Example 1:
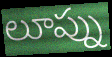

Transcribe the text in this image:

లూప్ను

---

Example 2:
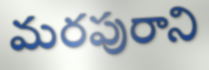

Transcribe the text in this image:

మరపురాని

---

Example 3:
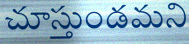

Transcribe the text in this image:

చూస్తుండమని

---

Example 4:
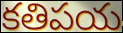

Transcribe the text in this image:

కతిపయ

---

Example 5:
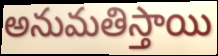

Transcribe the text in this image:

అనుమతిస్తాయి